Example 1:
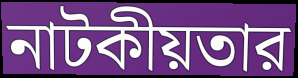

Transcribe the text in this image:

নাটকীয়তার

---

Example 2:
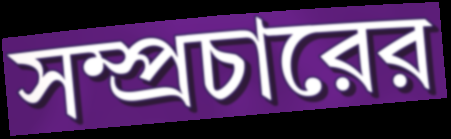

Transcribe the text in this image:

সম্প্রচারের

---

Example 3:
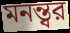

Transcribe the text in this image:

মনন্ত্বর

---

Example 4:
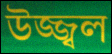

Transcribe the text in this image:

উজ্জ্বল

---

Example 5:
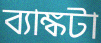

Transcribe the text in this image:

ব্যাঙ্কটা